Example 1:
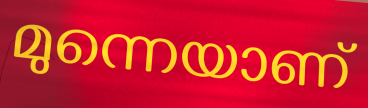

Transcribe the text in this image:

മുന്നെയാണ്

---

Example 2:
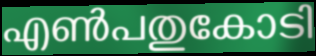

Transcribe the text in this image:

എൺപതുകോടി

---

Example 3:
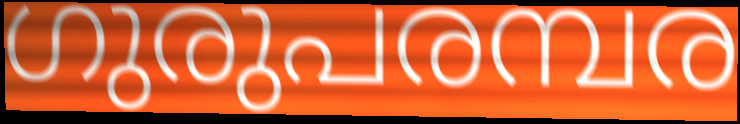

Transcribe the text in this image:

ഗുരുപരമ്പര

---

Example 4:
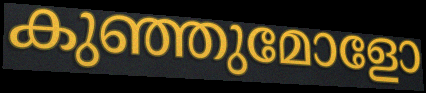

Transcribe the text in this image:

കുഞ്ഞുമോളോ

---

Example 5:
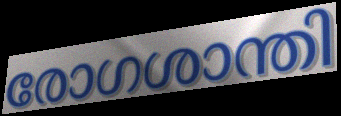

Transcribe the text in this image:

രോഗശാന്തി